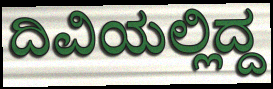
ದಿವಿಯಲ್ಲಿದ್ದ